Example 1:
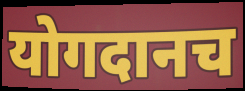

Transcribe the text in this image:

योगदानच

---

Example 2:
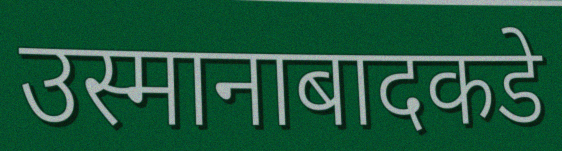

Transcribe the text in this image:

उस्मानाबादकडे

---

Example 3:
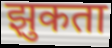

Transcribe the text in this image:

झुकता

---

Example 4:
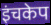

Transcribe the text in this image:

इंचकेप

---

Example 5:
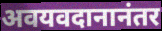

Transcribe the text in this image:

अवयवदानानंतर